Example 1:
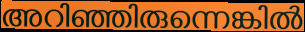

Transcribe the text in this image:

അറിഞ്ഞിരുന്നെങ്കിൽ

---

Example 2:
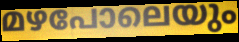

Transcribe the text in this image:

മഴപോലെയും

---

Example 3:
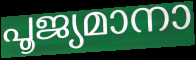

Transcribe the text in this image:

പൂജ്യമാനാ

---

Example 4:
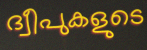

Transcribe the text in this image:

ദ്വീപുകളുടെ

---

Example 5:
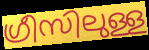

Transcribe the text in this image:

ഗ്രീസിലുള്ള